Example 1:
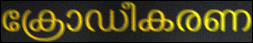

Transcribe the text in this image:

ക്രോഡീകരണ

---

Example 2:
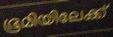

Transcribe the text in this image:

ഭൂമിയിലേക്ക്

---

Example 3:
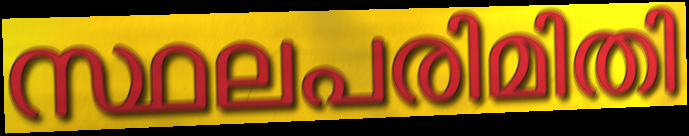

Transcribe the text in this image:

സ്ഥലപരിമിതി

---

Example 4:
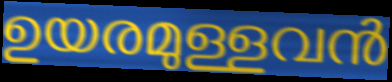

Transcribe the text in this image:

ഉയരമുള്ളവൻ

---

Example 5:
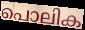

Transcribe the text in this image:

പൊലിക